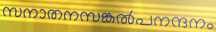
സനാതനസങ്കൽപനന്ദനം